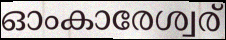
ഓംകാരേശ്വര്